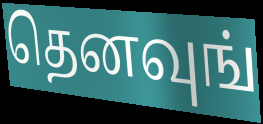
தெனவுங்